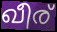
ഖീര്